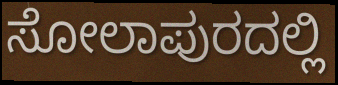
ಸೋಲಾಪುರದಲ್ಲಿ